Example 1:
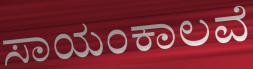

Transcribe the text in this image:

ಸಾಯಂಕಾಲವೆ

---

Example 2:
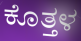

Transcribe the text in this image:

ಕೊತ್ತಳ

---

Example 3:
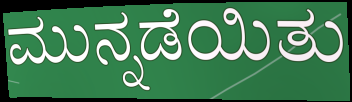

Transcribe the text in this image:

ಮುನ್ನಡೆಯಿತು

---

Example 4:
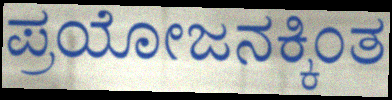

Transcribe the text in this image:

ಪ್ರಯೋಜನಕ್ಕಿಂತ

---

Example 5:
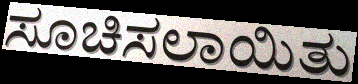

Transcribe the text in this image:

ಸೂಚಿಸಲಾಯಿತು